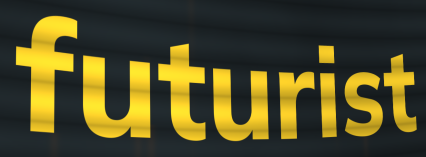
futurist